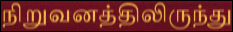
நிறுவனத்திலிருந்து